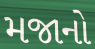
મજાનો